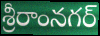
శ్రీరాంనగర్